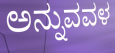
ಅನ್ನುವವಳ